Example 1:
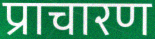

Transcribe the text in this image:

प्राचारण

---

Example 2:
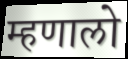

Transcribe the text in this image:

म्हणालो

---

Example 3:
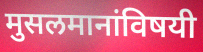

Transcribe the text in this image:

मुसलमानांविषयी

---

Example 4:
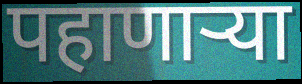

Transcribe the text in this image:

पहाणार्‍या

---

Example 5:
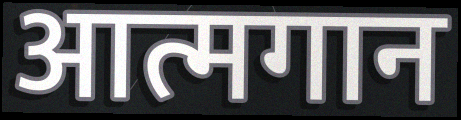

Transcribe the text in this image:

आत्मगान